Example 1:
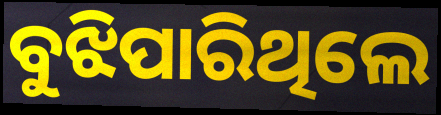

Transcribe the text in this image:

ବୁଝିପାରିଥିଲେ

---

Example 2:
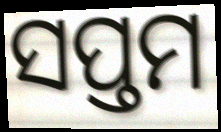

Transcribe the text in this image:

ସପ୍ତମ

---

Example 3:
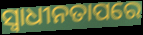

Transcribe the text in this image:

ସ୍ୱାଧୀନତାପରେ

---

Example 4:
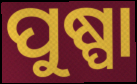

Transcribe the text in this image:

ପୁଷ୍ପା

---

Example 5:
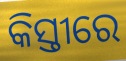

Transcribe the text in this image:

କିସ୍ତୀରେ